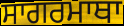
ਸਾਗਰਮਾਥਾ